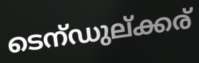
ടെന്ഡുല്ക്കര്